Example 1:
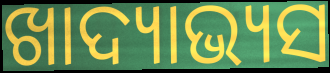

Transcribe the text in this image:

ଖାଦ୍ୟାଭ୍ୟସ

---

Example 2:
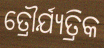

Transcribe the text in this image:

ତ୍ରୌର୍ଯ୍ୟତ୍ରିକ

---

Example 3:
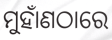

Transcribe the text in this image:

ମୁହାଁଣଠାରେ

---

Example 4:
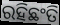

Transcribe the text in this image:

ରହିଛଂତି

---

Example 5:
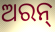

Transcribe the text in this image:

ଅରନ୍